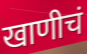
खाणीचं